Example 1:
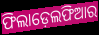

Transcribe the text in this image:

ଫିଲାଡ଼େଲଫିଆର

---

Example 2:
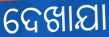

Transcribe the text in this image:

ଦେଖାଯା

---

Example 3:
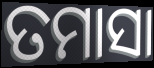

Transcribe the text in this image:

ତମାସା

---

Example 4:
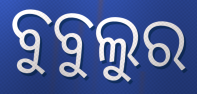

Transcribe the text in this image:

ବୁବୁଲୁର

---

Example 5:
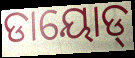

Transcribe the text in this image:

ଡାୟୋଡ୍